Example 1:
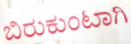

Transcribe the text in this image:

ಬಿರುಕುಂಟಾಗಿ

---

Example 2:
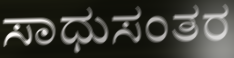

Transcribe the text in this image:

ಸಾಧುಸಂತರ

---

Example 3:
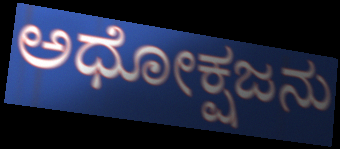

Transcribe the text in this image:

ಅಧೋಕ್ಷಜನು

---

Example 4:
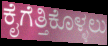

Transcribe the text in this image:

ಕೈಗೆತ್ತಿಕೊಳ್ಳಲು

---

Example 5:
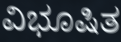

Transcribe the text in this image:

ವಿಭೂಷಿತ